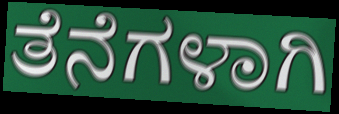
ತೆನೆಗಳಾಗಿ